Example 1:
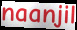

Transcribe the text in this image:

naanjil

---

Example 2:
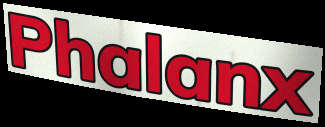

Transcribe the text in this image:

Phalanx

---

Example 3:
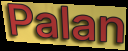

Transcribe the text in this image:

Palan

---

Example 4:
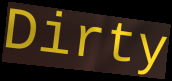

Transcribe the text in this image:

Dirty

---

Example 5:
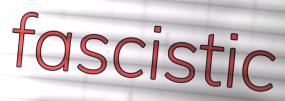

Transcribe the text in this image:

fascistic